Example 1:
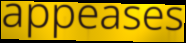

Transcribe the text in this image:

appeases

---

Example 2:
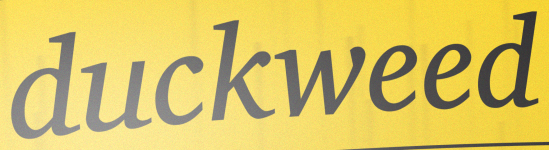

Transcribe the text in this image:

duckweed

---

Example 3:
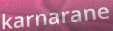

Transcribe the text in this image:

karnarane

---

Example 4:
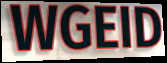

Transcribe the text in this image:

WGEID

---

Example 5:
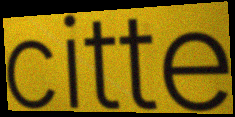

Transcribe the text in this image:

citte